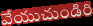
వేయుచుండిరి